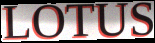
LOTUS